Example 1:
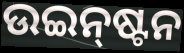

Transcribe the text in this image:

ଉଇନ୍‌ଷ୍ଟନ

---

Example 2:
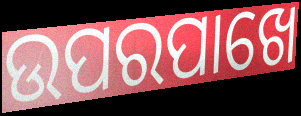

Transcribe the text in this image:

ଉପରପାଖେ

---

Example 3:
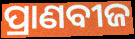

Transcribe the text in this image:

ପ୍ରାଣବୀଜ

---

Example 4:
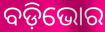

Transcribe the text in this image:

ବଡ଼ିଭୋର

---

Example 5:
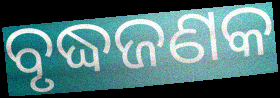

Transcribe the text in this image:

ବୃଦ୍ଧଜଣକ